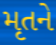
મૃતને